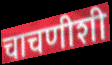
चाचणीशी